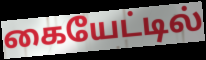
கையேட்டில்